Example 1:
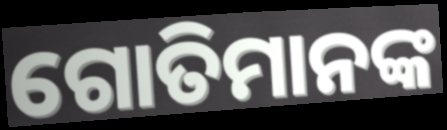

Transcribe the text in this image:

ଗୋତିମାନଙ୍କ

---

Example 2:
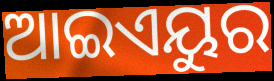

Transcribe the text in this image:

ଆଇଏୟୁର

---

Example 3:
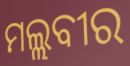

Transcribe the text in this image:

ମଲ୍ଲବୀର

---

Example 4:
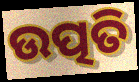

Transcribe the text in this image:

ଉତ୍ପତି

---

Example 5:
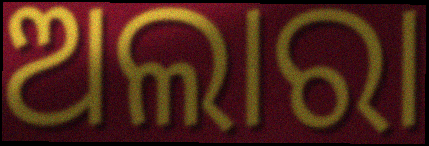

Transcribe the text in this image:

ଅଲାରା